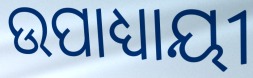
ଉପାଧ୍ୟାୟୀ